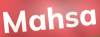
Mahsa